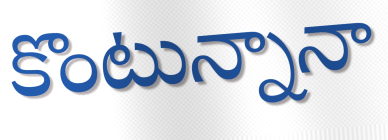
కొంటున్నానా